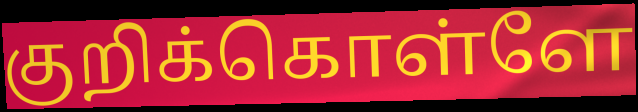
குறிக்கொள்ளே